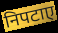
निपटाए